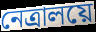
নেত্রালয়ে